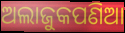
ଅଲାଜୁକପଣିଆ